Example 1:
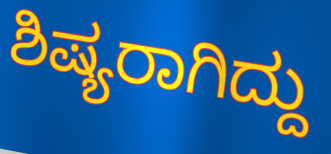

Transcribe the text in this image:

ಶಿಷ್ಯರಾಗಿದ್ದು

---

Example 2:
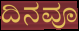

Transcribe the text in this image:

ದಿನವೂ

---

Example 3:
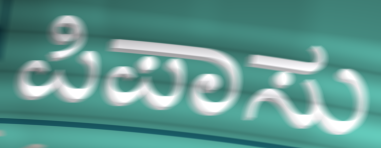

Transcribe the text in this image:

ಪಿಪಾಸು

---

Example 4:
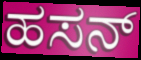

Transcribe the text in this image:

ಹಸನ್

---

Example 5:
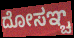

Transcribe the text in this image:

ದೋಸಞ್ಚ